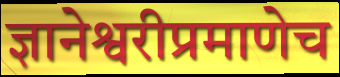
ज्ञानेश्वरीप्रमाणेच